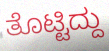
ತೊಟ್ಟಿದ್ದು